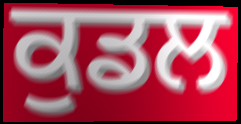
ਕੁਡਲ